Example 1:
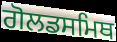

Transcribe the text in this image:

ਗੋਲਡਸਮਿਥ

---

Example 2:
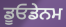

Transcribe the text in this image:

ਡੂਓਡੇਨਮ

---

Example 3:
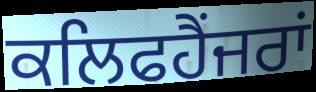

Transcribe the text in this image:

ਕਲਿਫਹੈਂਜਰਾਂ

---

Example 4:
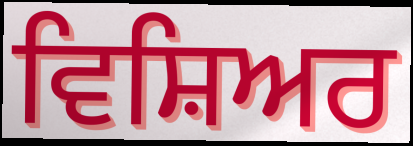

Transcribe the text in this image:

ਵਿਸ਼ਿਅਰ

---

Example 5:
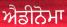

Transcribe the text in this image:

ਐਡੀਨੋਮਾ